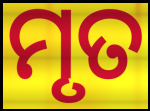
ମୃତ